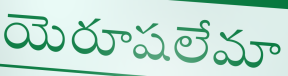
యెరూషలేమా